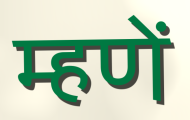
म्हणें